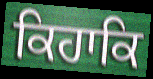
ਕਿਹਾਕਿ